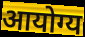
आयोग्य